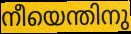
നീയെന്തിനു